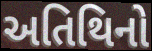
અતિથિનો